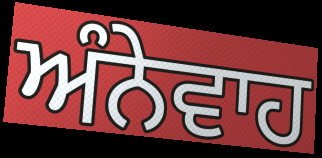
ਅੰਨੇਵਾਹ